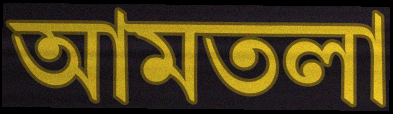
আমতলা